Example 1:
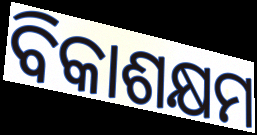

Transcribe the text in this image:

ବିକାଶକ୍ଷମ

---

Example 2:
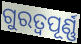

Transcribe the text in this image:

ଗୁରତ୍ୱପୂର୍ଣ୍ଣ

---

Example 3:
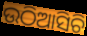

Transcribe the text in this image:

ଉଠିଆସିଚି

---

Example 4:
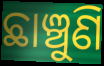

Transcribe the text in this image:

ଛାଞ୍ଚୁଣି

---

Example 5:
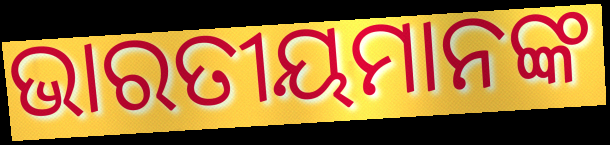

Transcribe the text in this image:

ଭାରତୀୟମାନଙ୍କ